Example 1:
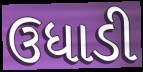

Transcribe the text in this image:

ઉધાડી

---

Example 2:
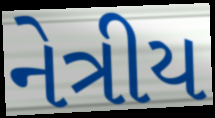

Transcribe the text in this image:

નેત્રીય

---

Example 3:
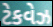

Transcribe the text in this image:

ટેકવેઝ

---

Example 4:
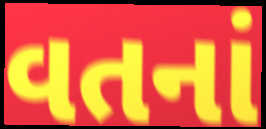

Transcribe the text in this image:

વતનાં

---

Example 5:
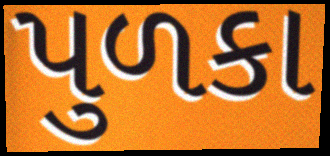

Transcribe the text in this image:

પુળકા